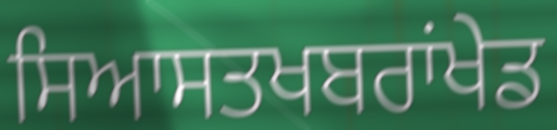
ਸਿਆਸਤਖਬਰਾਂਖੇਡ